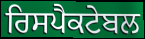
ਰਿਸਪੈਕਟੇਬਲ